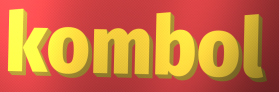
kombol